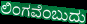
ಲಿಂಗವೆಂಬುದು